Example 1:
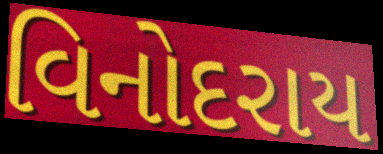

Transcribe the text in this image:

વિનોદરાય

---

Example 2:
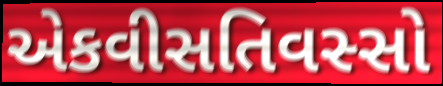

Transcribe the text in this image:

એકવીસતિવસ્સો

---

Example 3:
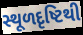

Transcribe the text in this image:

સ્થૂળદૃષ્ટિથી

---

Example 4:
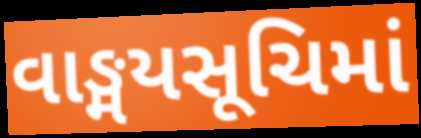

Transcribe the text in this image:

વાઙ્મયસૂચિમાં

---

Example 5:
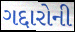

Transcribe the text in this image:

ગદ્દારોની